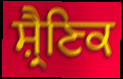
ਸ਼੍ਰੈਣਿਕ